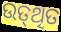
ଉତ୍‌ଥିତ